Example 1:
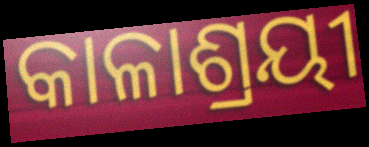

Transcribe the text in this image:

କାଳାଶ୍ରୟୀ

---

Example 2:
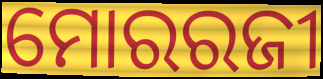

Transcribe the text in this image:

ମୋରରଜୀ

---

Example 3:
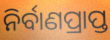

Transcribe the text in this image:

ନିର୍ବାଣପ୍ରାପ୍ତ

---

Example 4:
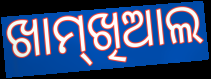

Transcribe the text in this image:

ଖାମ୍‌ଖିଆଲ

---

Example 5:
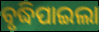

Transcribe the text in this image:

ବୃଦ୍ଧିପାଇଲା